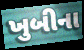
ખુબીના